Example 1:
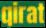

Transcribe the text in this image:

qirat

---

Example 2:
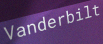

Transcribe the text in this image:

Vanderbilt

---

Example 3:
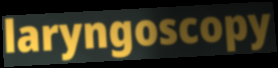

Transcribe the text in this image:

laryngoscopy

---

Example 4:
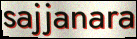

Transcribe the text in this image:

sajjanara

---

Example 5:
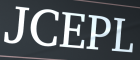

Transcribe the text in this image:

JCEPL